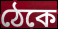
ঠেকে